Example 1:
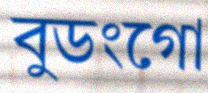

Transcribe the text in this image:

বুডংগো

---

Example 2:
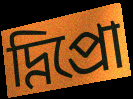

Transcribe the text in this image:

দ্নিপ্রো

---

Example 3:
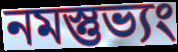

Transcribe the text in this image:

নমস্তুভ্যং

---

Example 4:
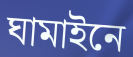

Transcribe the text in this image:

ঘামাইনে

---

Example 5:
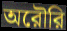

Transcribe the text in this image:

অরৌরি